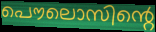
പൌലൊസിന്റെ